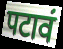
पटावं